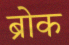
ब्रोक